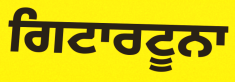
ਗਿਟਾਰਟੂਨਾ